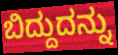
ಬಿದ್ದುದನ್ನು